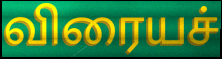
விரையச்